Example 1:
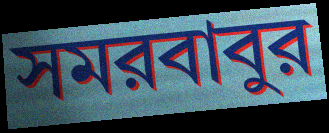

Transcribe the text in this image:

সমরবাবুর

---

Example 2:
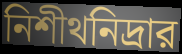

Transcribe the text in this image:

নিশীথনিদ্রার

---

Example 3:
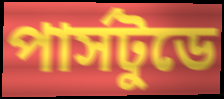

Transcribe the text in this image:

পার্সটুডে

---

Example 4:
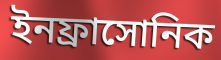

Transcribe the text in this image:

ইনফ্রাসোনিক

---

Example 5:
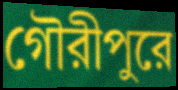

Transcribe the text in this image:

গৌরীপুরে